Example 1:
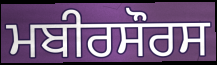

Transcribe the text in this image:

ਮਬੀਰਸੌਰਸ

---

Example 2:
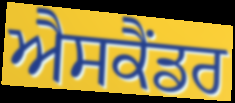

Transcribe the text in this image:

ਐਸਕੈਂਡਰ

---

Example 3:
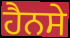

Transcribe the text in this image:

ਹੈਨਸੇ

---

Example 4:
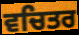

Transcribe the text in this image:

ਵਚਿਤਰ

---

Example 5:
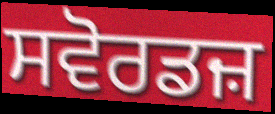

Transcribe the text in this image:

ਸਵੋਰਡਜ਼